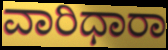
ವಾರಿಧಾರಾ